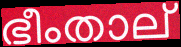
ഭീംതാല്